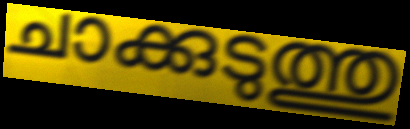
ചാക്കുടുത്തു